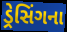
ડ્રેસિંગના